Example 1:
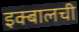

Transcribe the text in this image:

इक्बालची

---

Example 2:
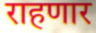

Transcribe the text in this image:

राहणार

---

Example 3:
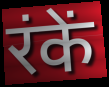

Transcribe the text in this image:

रंकें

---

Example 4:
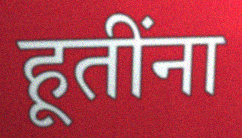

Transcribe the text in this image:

हूतींना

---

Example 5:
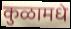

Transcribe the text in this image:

कुळामधे